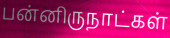
பன்னிருநாட்கள்